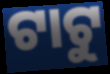
ଟାଟୁ